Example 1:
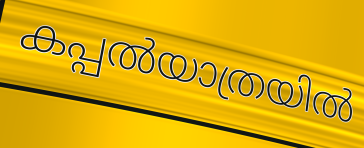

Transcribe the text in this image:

കപ്പൽയാത്രയിൽ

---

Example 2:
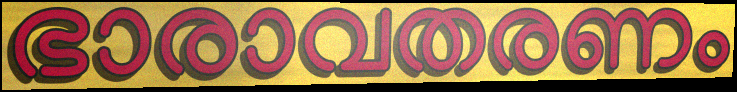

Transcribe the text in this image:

ഭാരാവതരണം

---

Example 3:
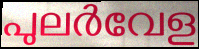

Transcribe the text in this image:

പുലർവേള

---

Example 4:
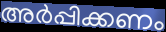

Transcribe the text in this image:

അർപ്പിക്കണം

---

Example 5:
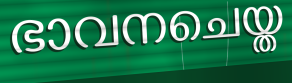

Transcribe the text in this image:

ഭാവനചെയ്ത